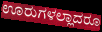
ಊರುಗಳಲ್ಲಾದರೂ